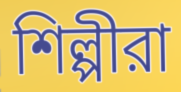
শিল্পীরা